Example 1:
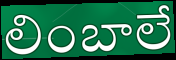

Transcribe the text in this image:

లింబాలే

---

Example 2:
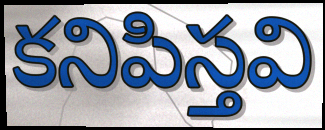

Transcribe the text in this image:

కనిపిస్తవి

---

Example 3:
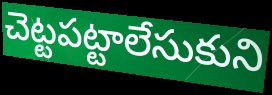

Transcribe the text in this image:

చెట్టపట్టాలేసుకుని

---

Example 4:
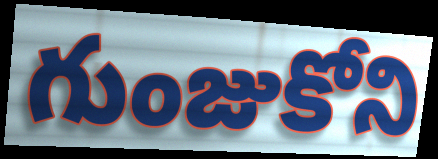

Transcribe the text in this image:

గుంజుకోని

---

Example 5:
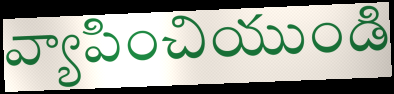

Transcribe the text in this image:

వ్యాపించియుండి